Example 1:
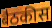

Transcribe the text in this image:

बैठकीस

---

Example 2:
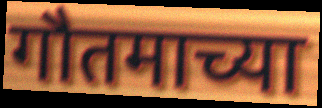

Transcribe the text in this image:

गौतमाच्या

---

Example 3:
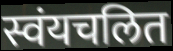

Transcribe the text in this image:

स्वंयचलित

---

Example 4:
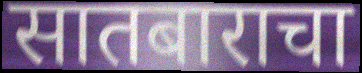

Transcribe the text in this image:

सातबाराचा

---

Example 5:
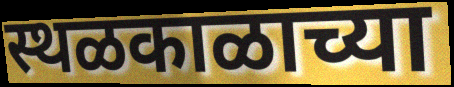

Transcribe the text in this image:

स्थळकाळाच्या